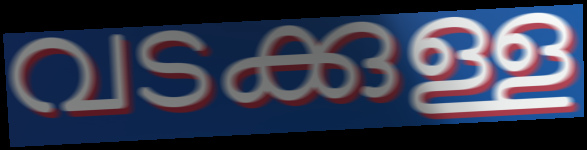
വടക്കുള്ള